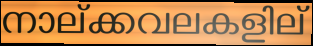
നാല്ക്കവലകളില്